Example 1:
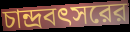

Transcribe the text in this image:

চান্দ্রবৎসরের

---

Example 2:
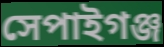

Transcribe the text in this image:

সেপাইগঞ্জ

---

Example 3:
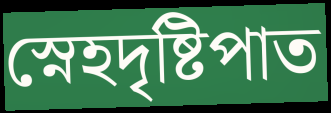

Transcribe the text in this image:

স্নেহদৃষ্টিপাত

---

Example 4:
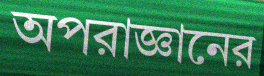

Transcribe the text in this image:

অপরাজ্ঞানের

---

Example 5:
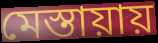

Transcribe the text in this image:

মেস্তায়ায়